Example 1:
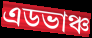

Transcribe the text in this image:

এডভাঞ্চ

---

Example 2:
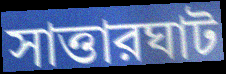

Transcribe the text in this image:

সাত্তারঘাট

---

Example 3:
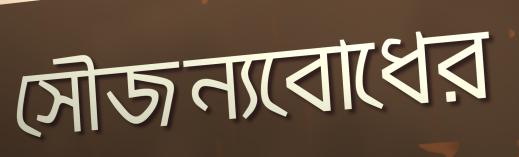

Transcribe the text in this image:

সৌজন্যবোধের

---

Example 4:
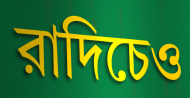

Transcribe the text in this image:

রাদিচেও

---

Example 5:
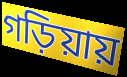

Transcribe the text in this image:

গড়িয়ায়